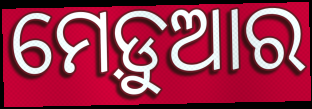
ମେଡ଼ୁଆର